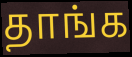
தாங்க